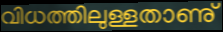
വിധത്തിലുള്ളതാണു്